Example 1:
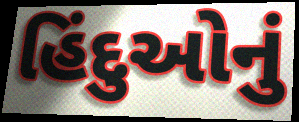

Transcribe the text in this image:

હિંદુઓનું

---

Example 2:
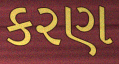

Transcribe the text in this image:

કરણ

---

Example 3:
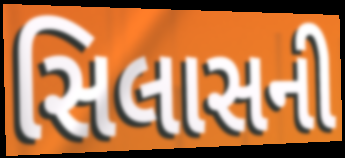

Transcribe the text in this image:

સિલાસની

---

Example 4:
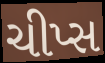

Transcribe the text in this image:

ચીપ્સ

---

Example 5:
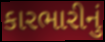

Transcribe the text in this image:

કારભારીનું